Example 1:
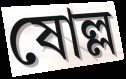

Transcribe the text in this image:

ষোল্ল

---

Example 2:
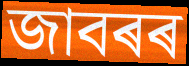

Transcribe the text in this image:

জাবৰৰ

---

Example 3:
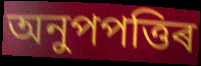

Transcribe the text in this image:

অনুপপত্তিৰ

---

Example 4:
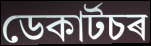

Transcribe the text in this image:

ডেকাৰ্টচৰ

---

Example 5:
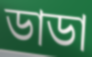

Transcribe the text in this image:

ডাডা